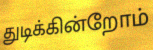
துடிக்கின்றோம்